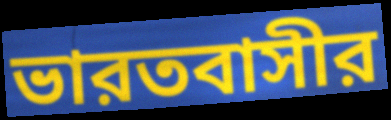
ভারতবাসীর